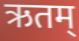
ऋतम्